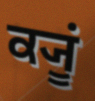
ਕ੍ਯੂਂ